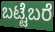
ಬಟ್ಟೆಬರೆ